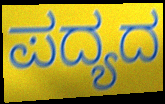
ಪದ್ಯದ